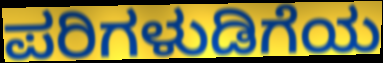
ಪರಿಗಳುಡಿಗೆಯ